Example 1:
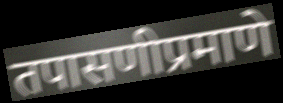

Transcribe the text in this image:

तपासणीप्रमाणे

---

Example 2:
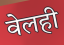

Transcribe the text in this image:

वेलही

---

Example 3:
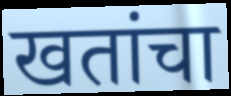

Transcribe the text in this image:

खतांचा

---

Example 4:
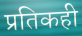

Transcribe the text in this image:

प्रतिकही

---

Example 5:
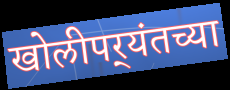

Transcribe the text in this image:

खोलीपर्यंतच्या